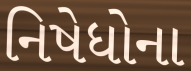
નિષેધોના